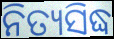
ନିତ୍ୟସିଦ୍ଧ